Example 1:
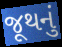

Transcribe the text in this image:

જૂથનું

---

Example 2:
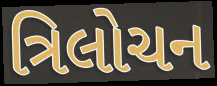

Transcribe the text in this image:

ત્રિલોચન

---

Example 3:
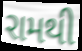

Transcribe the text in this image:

રામથી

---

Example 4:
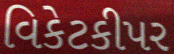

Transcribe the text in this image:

વિકેટકીપર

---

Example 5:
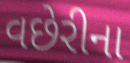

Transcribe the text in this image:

વછેરીના